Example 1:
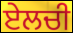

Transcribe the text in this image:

ਏਲਚੀ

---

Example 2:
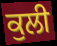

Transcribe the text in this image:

ਕੁਲੀ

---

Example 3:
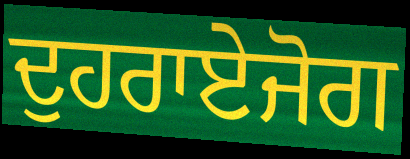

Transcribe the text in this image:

ਦੁਹਰਾਏਜੋਗ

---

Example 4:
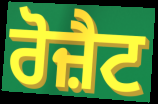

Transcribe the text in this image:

ਰੋਜ਼ੈਟ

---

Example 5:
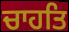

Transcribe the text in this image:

ਚਾਹਤਿ